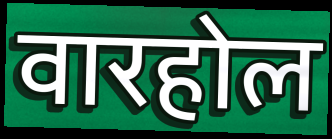
वारहोल